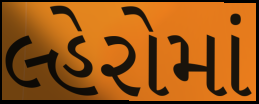
લ્હેરોમાં